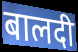
बालदी